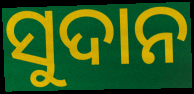
ସୁଦାନ